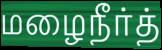
மழைநீர்த்